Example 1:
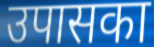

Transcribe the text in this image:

उपासका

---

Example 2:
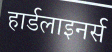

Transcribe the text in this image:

हार्डलाइनर्स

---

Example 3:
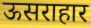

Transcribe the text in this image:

ऊसराहार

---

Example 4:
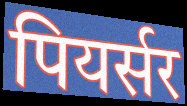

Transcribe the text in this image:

पियर्सर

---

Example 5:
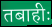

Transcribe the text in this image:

तबाहीः